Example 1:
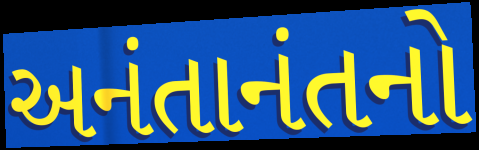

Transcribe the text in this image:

અનંતાનંતનો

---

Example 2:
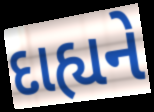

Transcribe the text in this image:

દાહ્યને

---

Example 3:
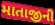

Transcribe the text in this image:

માતાજીની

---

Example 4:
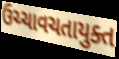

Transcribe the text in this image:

ઉચ્ચાવચતાયુક્ત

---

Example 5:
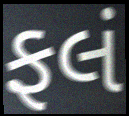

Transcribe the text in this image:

ફલં